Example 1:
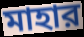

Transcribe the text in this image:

মাহার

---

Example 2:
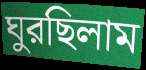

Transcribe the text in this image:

ঘুরছিলাম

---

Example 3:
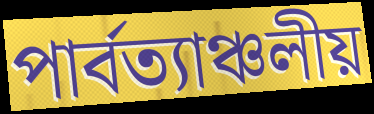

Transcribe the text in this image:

পার্বত্যাঞ্চলীয়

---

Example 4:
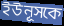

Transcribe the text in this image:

ইউনূসকে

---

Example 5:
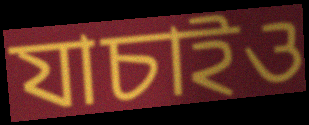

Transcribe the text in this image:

যাচাইও